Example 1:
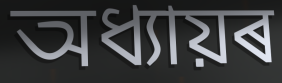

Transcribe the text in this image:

অধ্যায়ৰ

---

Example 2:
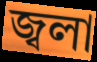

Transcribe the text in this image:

জ্বলা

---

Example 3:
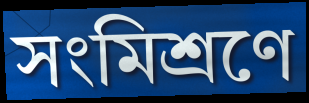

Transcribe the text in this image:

সংমিশ্ৰণে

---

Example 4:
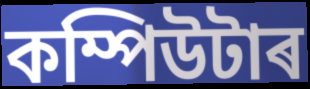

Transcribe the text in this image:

কম্পিউটাৰ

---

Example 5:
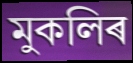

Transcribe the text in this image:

মুকলিৰ